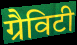
ग्रैविटी